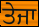
ਤੇਜਾ